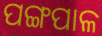
ପଙ୍ଗପାଳ